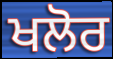
ਖਲੋਰ